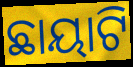
ଛାୟାଟି